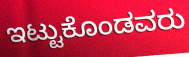
ಇಟ್ಟುಕೊಂಡವರು